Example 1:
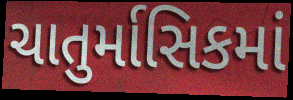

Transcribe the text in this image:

ચાતુર્માસિકમાં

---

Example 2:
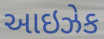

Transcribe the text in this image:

આઇઝેક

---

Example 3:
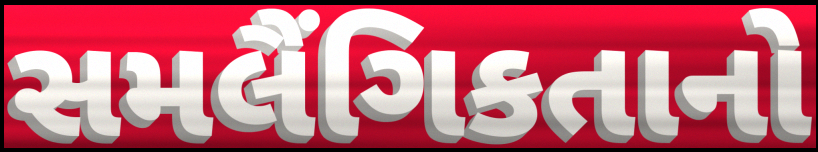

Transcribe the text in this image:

સમલૈંગિકતાનો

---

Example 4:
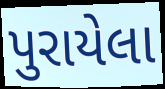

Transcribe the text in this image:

પુરાયેલા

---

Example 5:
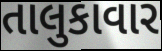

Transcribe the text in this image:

તાલુકાવાર